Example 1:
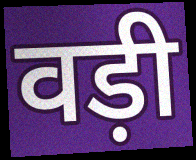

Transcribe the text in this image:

वड़ी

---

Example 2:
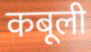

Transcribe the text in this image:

कबूली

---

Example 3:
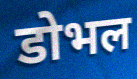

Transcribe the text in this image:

डोभल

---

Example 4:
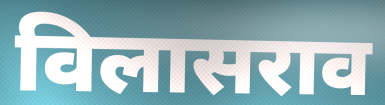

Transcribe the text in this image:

विलासराव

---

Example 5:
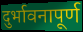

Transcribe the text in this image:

दुर्भावनापूर्ण